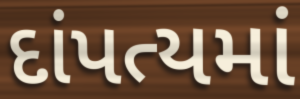
દાંપત્યમાં